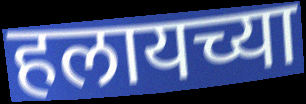
हलायच्या